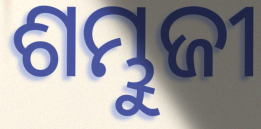
ଶମ୍ଭୁଜୀ